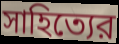
সাহিত্যের